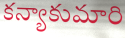
కన్యాకుమారి